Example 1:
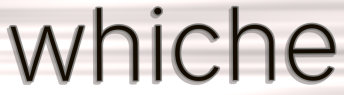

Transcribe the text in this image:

whiche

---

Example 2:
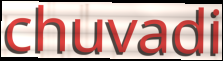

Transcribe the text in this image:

chuvadi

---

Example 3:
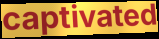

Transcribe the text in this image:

captivated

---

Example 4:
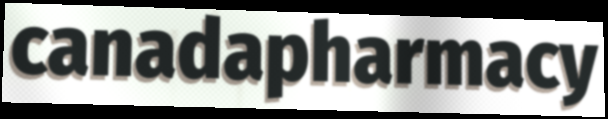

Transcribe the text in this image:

canadapharmacy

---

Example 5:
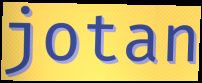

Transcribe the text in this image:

jotan